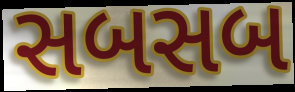
સબસબ